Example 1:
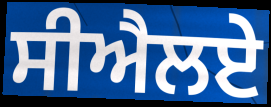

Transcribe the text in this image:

ਸੀਐਲਏ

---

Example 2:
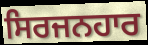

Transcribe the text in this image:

ਸਿਰਜਨਹਾਰ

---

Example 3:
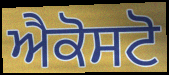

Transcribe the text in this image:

ਐਕੋਸਟੋ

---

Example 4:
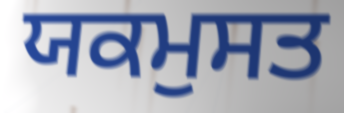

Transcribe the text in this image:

ਯਕਮੁਸਤ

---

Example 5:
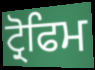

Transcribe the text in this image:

ਟ੍ਰੋਫਿਮ